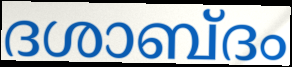
ദശാബ്ദം